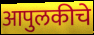
आपुलकीचे